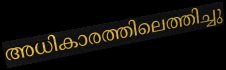
അധികാരത്തിലെത്തിച്ചു